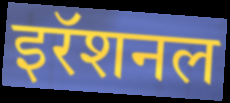
इरॅशनल